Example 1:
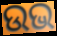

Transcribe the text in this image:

ଉଭ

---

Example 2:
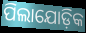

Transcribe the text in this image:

ପିଲାଯୋଡ଼ିକ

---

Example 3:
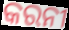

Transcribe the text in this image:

କରନୀ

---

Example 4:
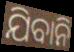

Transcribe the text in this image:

ଯିବାନି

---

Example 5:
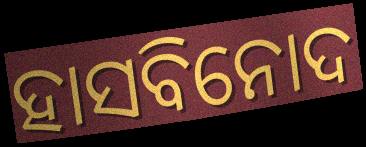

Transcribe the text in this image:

ହାସବିନୋଦ